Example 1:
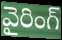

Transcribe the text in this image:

వైరింగ్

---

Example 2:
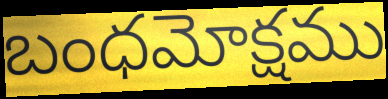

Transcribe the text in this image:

బంధమోక్షము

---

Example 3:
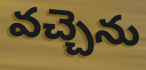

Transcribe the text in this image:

వచ్చెను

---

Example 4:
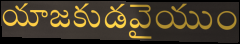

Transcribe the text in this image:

యాజకుడవైయుం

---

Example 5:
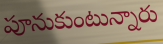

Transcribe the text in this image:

పూనుకుంటున్నారు